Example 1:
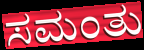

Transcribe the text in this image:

ಸಮಂತು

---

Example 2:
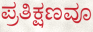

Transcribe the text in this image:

ಪ್ರತಿಕ್ಷಣವೂ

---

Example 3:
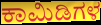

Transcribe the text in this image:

ಕಾಮಿಡಿಗಳ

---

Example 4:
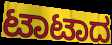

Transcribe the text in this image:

ಟಾಟಾದ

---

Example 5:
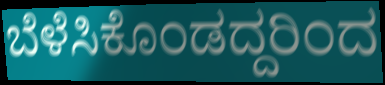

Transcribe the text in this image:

ಬೆಳೆಸಿಕೊಂಡದ್ದರಿಂದ